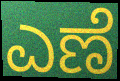
ಎಣೆ